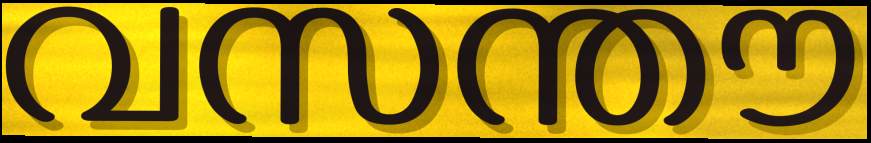
വസന്തൗ